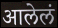
आलेलं